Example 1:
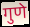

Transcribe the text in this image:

गुणे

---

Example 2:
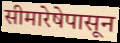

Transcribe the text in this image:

सीमारेषेपासून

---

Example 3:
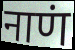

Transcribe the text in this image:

नाणं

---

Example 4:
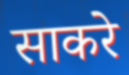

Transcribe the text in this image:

साकरे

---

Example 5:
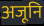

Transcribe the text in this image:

अजूनि